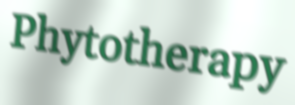
Phytotherapy